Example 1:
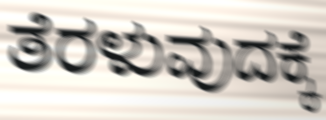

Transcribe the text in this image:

ತೆರಳುವುದಕ್ಕೆ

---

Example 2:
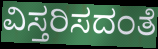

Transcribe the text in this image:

ವಿಸ್ತರಿಸದಂತೆ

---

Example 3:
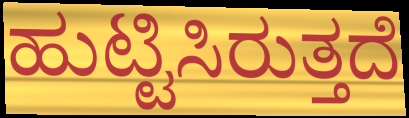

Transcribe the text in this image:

ಹುಟ್ಟಿಸಿರುತ್ತದೆ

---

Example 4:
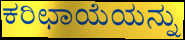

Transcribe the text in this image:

ಕರಿಛಾಯೆಯನ್ನು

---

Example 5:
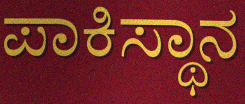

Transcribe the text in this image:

ಪಾಕಿಸ್ಥಾನ